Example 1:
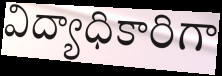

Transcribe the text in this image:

విద్యాధికారిగా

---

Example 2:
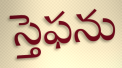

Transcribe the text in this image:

స్తెఫను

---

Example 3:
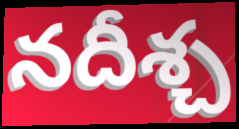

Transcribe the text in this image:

నదీశ్చ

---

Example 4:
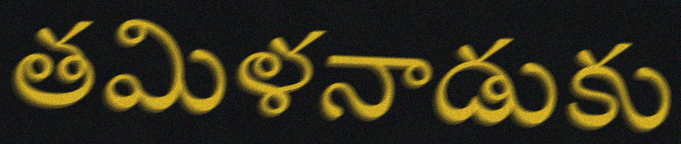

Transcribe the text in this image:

తమిళనాడుకు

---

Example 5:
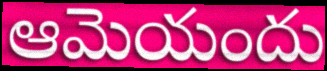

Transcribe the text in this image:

ఆమెయందు